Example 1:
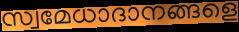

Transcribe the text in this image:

സ്വമേധാദാനങ്ങളെ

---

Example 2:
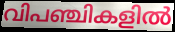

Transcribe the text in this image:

വിപഞ്ചികളിൽ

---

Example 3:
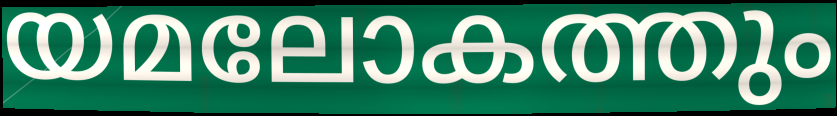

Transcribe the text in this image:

യമലോകത്തും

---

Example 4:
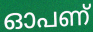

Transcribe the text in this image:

ഓപണ്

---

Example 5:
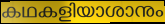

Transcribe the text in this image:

കഥകളിയാശാനും